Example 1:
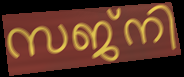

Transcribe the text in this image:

സജ്നി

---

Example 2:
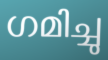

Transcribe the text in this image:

ഗമിച്ചു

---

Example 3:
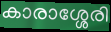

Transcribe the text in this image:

കാരാശ്ശേരി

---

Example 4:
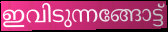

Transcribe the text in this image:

ഇവിടുന്നങ്ങോട്ട്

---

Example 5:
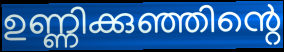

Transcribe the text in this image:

ഉണ്ണിക്കുഞ്ഞിന്റെ